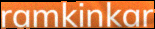
ramkinkar